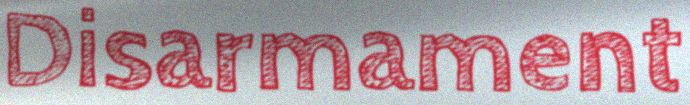
Disarmament